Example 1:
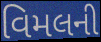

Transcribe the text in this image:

વિમલની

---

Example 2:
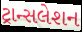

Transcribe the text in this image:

ટ્રાન્સલેશન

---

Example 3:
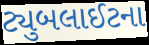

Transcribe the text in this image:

ટ્યુબલાઈટના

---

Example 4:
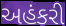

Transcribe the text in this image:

અહંકરી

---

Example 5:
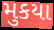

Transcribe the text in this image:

મુકયા